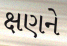
ક્ષણને